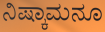
ನಿಷ್ಕಾಮನೂ